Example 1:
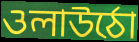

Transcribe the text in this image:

ওলাউঠো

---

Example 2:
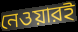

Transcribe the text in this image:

নেওয়ারই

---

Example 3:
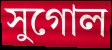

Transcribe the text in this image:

সুগোল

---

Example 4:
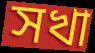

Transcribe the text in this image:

সখা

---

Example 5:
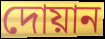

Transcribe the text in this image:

দোয়ান